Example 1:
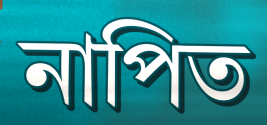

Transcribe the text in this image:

নাপিত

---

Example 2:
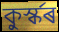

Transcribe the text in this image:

কুৰ্স্কৰ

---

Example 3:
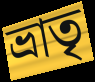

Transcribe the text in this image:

ভ্ৰাতৃ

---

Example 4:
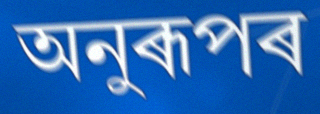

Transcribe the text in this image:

অনুৰূপৰ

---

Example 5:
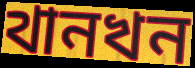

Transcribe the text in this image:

থানখন